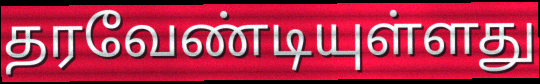
தரவேண்டியுள்ளது